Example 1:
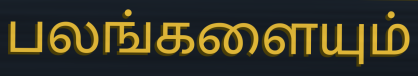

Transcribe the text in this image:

பலங்களையும்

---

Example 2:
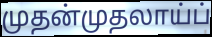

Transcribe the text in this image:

முதன்முதலாய்ப்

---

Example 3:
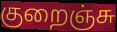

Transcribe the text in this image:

குறைஞ்சு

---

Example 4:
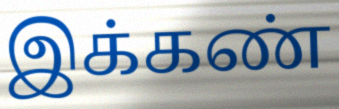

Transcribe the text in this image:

இக்கண்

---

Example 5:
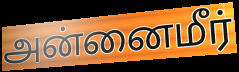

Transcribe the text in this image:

அன்னைமீர்